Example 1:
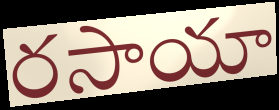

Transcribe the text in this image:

రసాయా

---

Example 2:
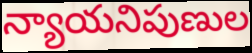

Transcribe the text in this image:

న్యాయనిపుణుల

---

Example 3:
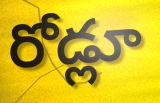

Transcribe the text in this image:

రోడ్లూ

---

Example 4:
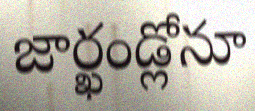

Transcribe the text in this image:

జార్ఖండ్లోనూ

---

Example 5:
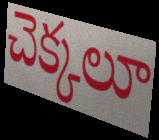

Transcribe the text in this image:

చెక్కలూ